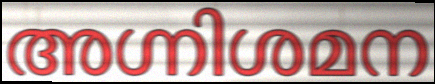
അഗ്നിശമന